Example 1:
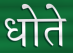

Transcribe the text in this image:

धोते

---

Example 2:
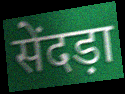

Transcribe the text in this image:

सेंदड़ा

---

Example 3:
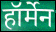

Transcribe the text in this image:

हॉर्मेन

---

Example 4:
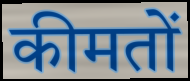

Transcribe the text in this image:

कीमतों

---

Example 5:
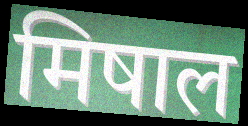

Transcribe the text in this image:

मिषाल